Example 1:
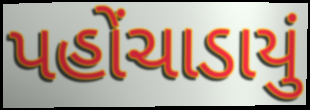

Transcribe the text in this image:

પહોંચાડાયું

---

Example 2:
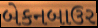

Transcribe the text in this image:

બેકનબાઉર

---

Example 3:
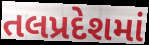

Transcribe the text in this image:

તલપ્રદેશમાં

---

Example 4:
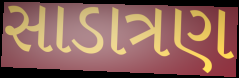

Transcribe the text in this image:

સાડાત્રણ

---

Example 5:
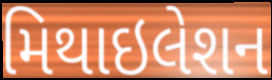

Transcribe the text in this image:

મિથાઇલેશન